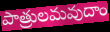
పాత్రులమవుదాం